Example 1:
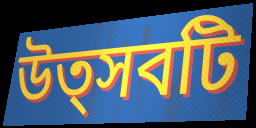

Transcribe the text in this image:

উত্সবটি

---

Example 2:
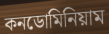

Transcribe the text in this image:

কনডোমিনিয়াম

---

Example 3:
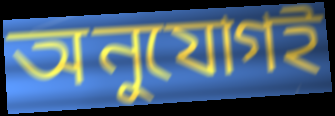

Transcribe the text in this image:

অনুযোগই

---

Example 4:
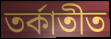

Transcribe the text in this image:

তর্কাতীত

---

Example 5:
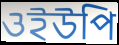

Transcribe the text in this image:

ওইউপি